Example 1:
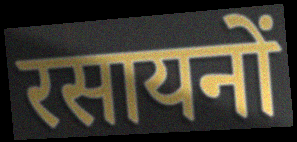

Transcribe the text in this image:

रसायनों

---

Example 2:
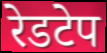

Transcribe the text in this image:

रेडटेप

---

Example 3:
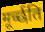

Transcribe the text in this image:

मूर्च्छति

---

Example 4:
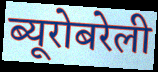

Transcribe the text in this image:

ब्यूरोबरेली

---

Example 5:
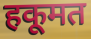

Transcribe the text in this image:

हकूमत